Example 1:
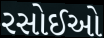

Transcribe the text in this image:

રસોઈઓ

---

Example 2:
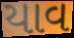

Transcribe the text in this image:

યાવ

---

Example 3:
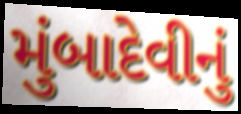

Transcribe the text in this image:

મુંબાદેવીનું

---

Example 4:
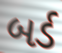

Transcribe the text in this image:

બર્ડ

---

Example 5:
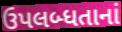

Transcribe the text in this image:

ઉપલબ્ધતાનાં